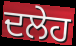
ਦਲੇਹ